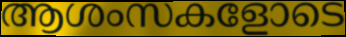
ആശംസകളോടെ